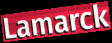
Lamarck